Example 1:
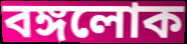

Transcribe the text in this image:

বঙ্গলোক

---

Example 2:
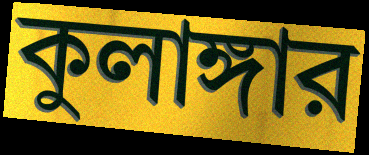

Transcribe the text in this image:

কুলাঙ্গার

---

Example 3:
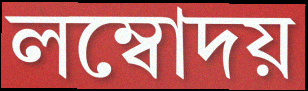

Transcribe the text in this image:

লম্বোদয়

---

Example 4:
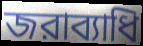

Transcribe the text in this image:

জরাব্যাধি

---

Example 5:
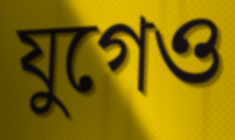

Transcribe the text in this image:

যুগেও